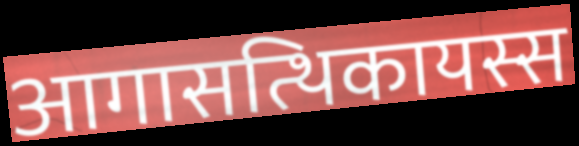
आगासत्थिकायस्स